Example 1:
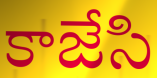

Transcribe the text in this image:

కాజేసి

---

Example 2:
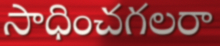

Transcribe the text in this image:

సాధించగలరా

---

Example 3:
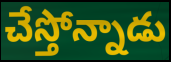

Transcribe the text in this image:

చేస్తోన్నాడు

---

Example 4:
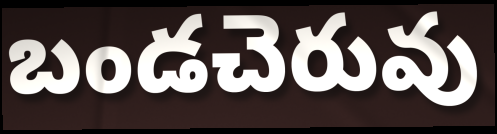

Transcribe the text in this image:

బండచెరువు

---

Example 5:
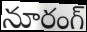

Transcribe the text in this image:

నూరంగ్